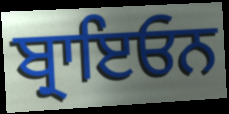
ਬ੍ਰਾਇਓਨ